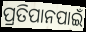
ପ୍ରତିପାନପାଇଁ